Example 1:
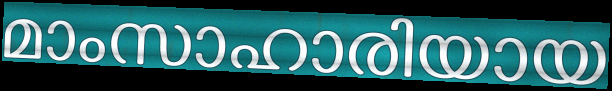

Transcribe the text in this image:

മാംസാഹാരിയായ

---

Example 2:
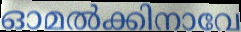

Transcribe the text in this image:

ഓമൽക്കിനാവേ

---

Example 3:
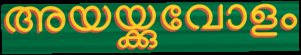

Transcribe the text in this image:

അയയ്ക്കുവോളം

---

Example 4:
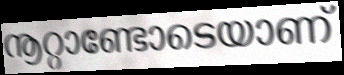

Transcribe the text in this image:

നൂറ്റാണ്ടോടെയാണ്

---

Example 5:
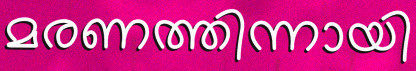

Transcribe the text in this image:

മരണത്തിന്നായി